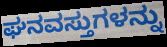
ಘನವಸ್ತುಗಳನ್ನು